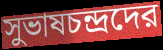
সুভাষচন্দ্রদের